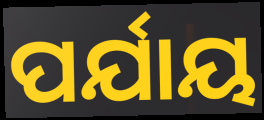
ପର୍ଯାୟ